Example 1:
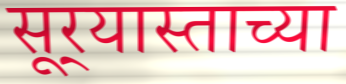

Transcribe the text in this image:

सूर्यास्ताच्या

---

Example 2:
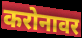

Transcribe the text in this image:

करोनावर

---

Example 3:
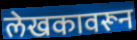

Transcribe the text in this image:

लेखकावरून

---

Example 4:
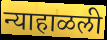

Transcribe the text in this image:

न्याहाळली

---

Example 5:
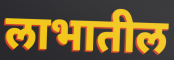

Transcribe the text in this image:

लाभातील